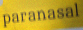
paranasal